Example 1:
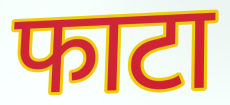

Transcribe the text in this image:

फाटा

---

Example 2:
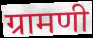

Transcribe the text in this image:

ग्रामणी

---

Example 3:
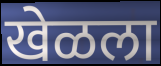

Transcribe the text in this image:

खेळला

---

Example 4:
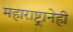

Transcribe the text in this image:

महाराष्ट्रानेही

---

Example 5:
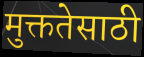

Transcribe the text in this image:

मुक्ततेसाठी